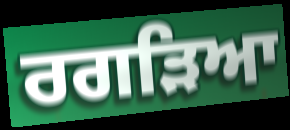
ਰਗੜਿਆ